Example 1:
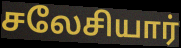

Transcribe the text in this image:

சலேசியார்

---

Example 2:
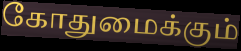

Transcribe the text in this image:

கோதுமைக்கும்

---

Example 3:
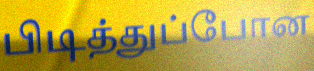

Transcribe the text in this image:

பிடித்துப்போன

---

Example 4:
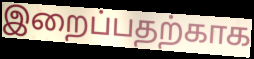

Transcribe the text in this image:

இறைப்பதற்காக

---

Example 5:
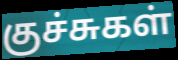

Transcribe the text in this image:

குச்சுகள்